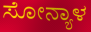
ಸೋನ್ಯಾಳ